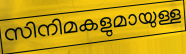
സിനിമകളുമായുള്ള